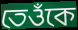
তেওঁকে